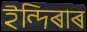
ইন্দিৰাৰ